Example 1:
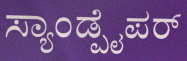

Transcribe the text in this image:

ಸ್ಯಾಂಡ್ಪೈಪರ್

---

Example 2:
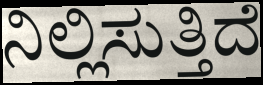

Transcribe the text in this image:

ನಿಲ್ಲಿಸುತ್ತಿದೆ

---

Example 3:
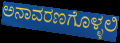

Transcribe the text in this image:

ಅನಾವರಣಗೊಳ್ಳಲಿ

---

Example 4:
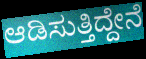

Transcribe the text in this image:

ಆಡಿಸುತ್ತಿದ್ದೇನೆ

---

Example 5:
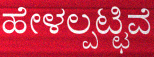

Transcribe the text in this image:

ಹೇಳಲ್ಪಟ್ಟಿವೆ